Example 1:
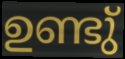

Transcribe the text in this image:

ഉണ്ടു്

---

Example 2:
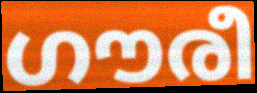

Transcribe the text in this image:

ഗൗരീ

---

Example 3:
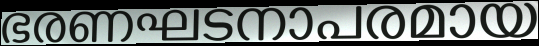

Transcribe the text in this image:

ഭരണഘടനാപരമായ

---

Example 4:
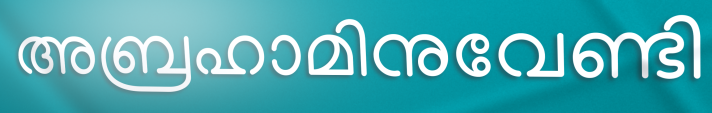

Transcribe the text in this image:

അബ്രഹാമിനുവേണ്ടി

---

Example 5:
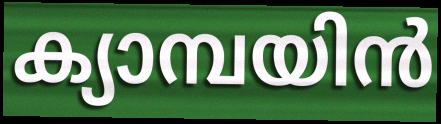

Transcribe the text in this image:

ക്യാമ്പയിൻ